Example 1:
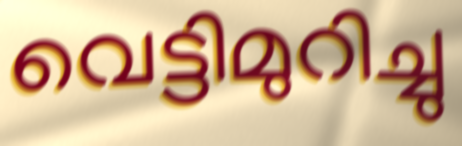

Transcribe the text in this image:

വെട്ടിമുറിച്ചു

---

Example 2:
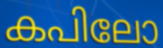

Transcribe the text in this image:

കപിലോ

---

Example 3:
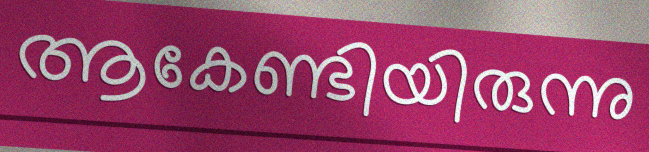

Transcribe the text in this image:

ആകേണ്ടിയിരുന്നു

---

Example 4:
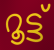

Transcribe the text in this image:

റൂട്ട്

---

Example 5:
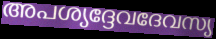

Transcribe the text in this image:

അപശ്യദ്ദേവദേവസ്യ